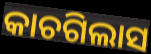
କାଚଗିଲାସ